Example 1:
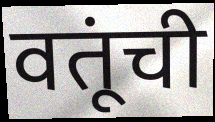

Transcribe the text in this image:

वतूंची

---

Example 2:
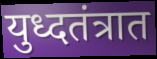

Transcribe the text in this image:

युध्दतंत्रात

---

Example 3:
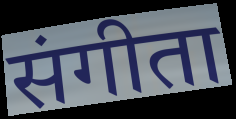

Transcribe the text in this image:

संगीता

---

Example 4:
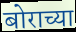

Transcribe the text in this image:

बोराच्या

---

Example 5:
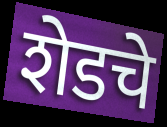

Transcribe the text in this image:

शेडचे